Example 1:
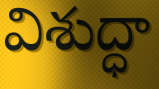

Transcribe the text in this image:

విశుద్ధా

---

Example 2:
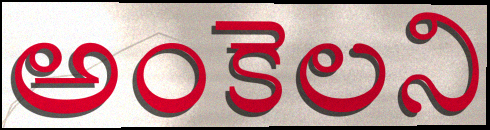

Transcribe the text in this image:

అంకెలని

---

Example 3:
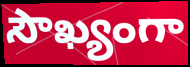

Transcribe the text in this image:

సౌఖ్యంగా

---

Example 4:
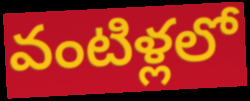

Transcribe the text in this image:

వంటిళ్లలో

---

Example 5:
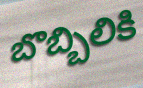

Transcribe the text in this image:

బొబ్బిలికి